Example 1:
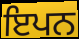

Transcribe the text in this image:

ਇਪਨ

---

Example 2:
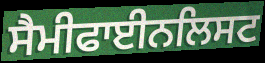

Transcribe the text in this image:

ਸੈਮੀਫਾਈਨਲਿਸਟ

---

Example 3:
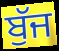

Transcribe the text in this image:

ਬੁੱਜ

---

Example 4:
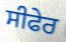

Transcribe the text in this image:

ਸੀਫੇਰ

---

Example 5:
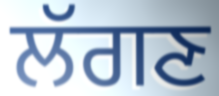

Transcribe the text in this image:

ਲੱਗਣ